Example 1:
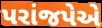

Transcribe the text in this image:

પરાંજપેએ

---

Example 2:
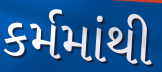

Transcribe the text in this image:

કર્મમાંથી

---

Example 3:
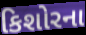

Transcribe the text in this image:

કિશોરના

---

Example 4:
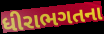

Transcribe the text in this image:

ધીરાભગતના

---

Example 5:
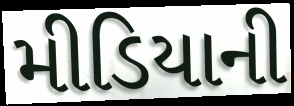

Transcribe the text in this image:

મીડિયાની